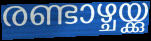
രണ്ടാഴ്ചയ്ക്കു